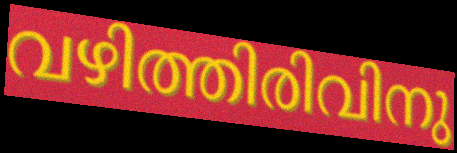
വഴിത്തിരിവിനു